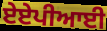
ਏਏਪੀਆਈ